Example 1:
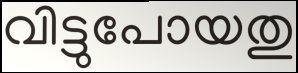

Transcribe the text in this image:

വിട്ടുപോയതു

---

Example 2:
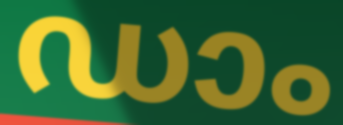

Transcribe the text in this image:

ഡാം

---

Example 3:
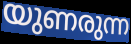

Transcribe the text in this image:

യുണരുന്ന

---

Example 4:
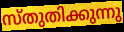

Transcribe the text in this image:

സ്തുതിക്കുന്നു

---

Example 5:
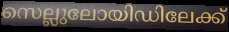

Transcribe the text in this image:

സെല്ലുലോയിഡിലേക്ക്